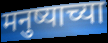
मनुष्याच्या